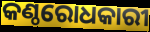
କଣ୍ଠରୋଧକାରୀ